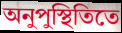
অনুপুস্থিতিতে